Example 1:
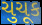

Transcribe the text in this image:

ચુચૂક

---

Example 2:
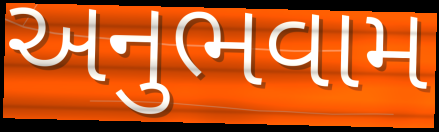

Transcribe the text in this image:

અનુભવામ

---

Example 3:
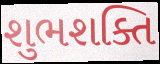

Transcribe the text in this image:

શુભશક્તિ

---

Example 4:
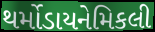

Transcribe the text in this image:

થર્મોડાયનેમિકલી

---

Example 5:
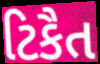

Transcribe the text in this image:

ટિકૈત